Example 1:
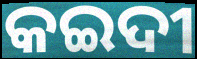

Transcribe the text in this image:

କଇଦୀ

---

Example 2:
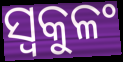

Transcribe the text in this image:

ସ୍ୱକୁଳଂ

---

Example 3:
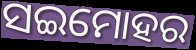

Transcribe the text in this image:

ସଇମୋହର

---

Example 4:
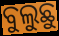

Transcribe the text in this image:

ବୁଲୁଛୁ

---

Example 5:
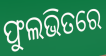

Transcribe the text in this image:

ଫୁଲଭିତରେ